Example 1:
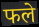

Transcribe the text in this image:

फले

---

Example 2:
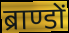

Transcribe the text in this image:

ब्राण्डों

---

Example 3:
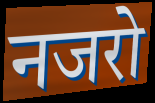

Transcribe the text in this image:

नजरो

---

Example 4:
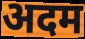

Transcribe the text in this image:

अदम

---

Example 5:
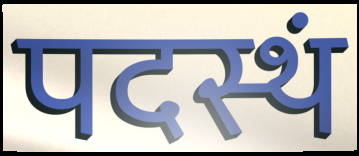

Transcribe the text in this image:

पदस्थं